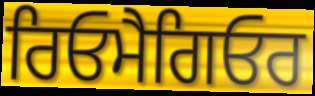
ਰਿਓਮੈਗਿਓਰ